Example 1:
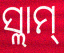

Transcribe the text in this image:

ସ୍ଲାମ୍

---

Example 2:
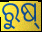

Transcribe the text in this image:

ରୁଷ୍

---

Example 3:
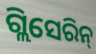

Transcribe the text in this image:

ଗ୍ଲିସେରିନ୍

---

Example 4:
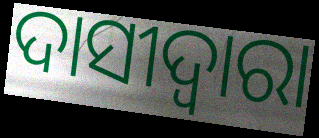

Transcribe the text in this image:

ଦାସୀଦ୍ୱାରା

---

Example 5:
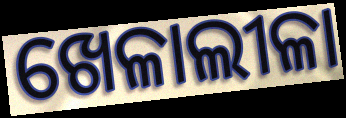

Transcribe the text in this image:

ଖେଳାଲୀଳା